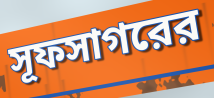
সূফসাগরের